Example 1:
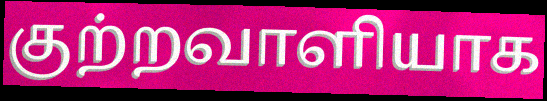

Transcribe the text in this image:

குற்றவாளியாக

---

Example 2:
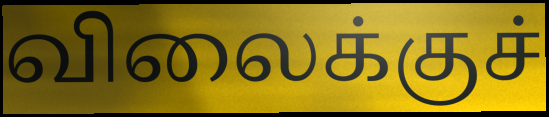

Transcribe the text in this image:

விலைக்குச்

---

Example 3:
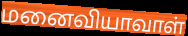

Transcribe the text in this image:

மனைவியாவாள்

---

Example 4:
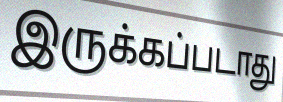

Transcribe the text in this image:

இருக்கப்படாது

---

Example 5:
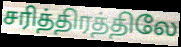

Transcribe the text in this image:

சரித்திரத்திலே